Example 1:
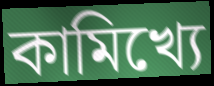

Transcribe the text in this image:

কামিখ্যে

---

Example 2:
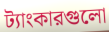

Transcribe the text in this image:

ট্যাংকারগুলো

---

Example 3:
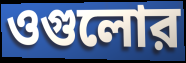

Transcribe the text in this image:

ওগুলোর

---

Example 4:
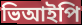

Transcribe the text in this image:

ভিআইপি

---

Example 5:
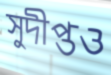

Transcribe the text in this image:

সুদীপ্তও